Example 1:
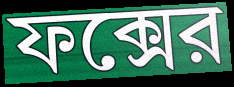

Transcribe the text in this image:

ফক্সের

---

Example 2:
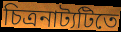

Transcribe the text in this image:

চিত্রনাট্যটিতে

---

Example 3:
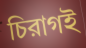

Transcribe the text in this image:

চিরাগই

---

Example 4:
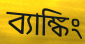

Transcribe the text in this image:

ব্যাঙ্কিং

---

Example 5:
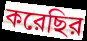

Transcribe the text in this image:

করেছির